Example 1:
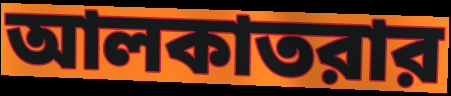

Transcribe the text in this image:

আলকাতরার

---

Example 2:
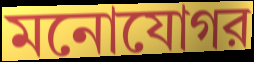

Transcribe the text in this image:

মনোযোগর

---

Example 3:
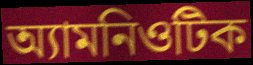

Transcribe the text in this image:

অ্যামনিওটিক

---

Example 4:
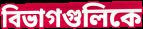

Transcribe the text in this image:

বিভাগগুলিকে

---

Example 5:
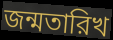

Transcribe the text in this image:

জন্মতারিখ